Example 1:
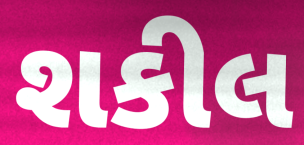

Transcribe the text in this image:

શકીલ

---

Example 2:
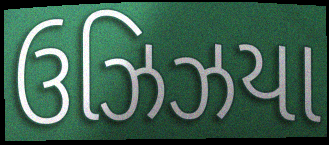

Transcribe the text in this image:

ઉઝિઝયા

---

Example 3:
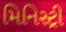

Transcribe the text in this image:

મિનિસ્ટ્રી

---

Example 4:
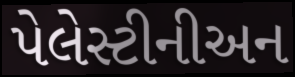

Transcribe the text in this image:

પેલેસ્ટીનીઅન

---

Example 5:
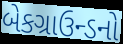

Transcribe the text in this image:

બેકગ્રાઉન્ડનો